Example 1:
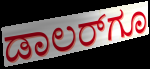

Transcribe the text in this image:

ಡಾಲರ್‌ಗೂ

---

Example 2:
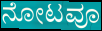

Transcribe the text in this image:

ನೋಟವೂ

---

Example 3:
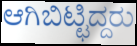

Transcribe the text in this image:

ಆಗಿಬಿಟ್ಟಿದ್ದರು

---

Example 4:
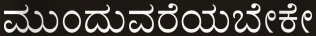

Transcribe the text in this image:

ಮುಂದುವರೆಯಬೇಕೇ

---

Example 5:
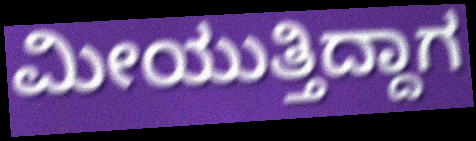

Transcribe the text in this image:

ಮೀಯುತ್ತಿದ್ದಾಗ